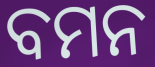
ବମନ